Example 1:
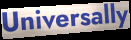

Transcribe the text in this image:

Universally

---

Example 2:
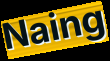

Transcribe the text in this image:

Naing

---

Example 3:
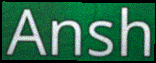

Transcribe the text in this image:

Ansh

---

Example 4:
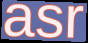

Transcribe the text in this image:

asr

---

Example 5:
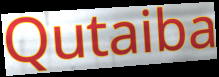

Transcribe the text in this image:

Qutaiba